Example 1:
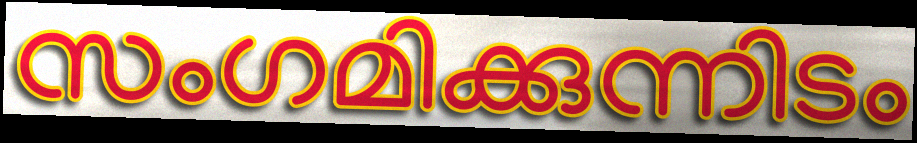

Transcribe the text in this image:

സംഗമിക്കുന്നിടം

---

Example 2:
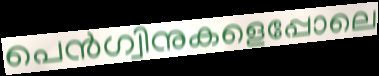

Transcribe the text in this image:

പെൻഗ്വിനുകളെപ്പോലെ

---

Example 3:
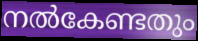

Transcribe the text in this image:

നൽകേണ്ടതും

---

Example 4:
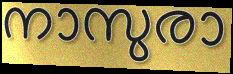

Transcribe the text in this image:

നാസുരാ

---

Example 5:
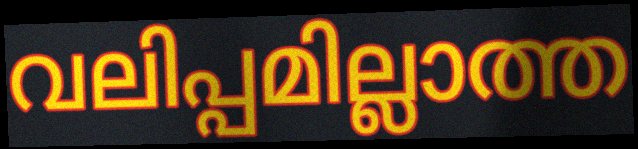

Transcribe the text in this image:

വലിപ്പമില്ലാത്ത